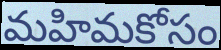
మహిమకోసం